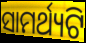
ସାମର୍ଥ୍ୟଟି